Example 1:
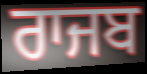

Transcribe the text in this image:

ਰਾਜਬ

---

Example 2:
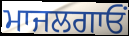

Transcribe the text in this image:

ਮਾਜਲਗਾਓਂ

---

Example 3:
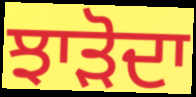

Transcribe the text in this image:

ਝਾੜੋਦਾ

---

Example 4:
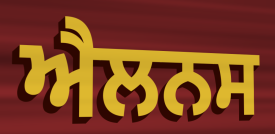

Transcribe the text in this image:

ਐਲਨਸ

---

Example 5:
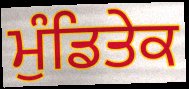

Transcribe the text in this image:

ਮੁੰਡਿਤੇਕ